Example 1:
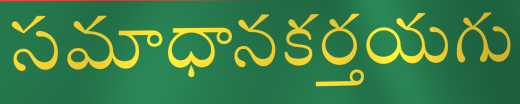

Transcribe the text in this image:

సమాధానకర్తయగు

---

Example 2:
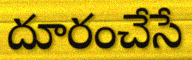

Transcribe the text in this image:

దూరంచేసే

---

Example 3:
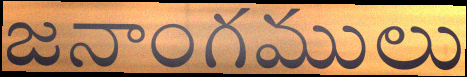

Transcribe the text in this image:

జనాంగములు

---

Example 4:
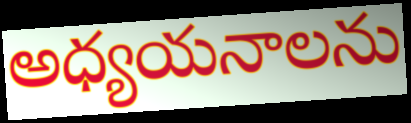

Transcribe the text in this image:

అధ్యయనాలను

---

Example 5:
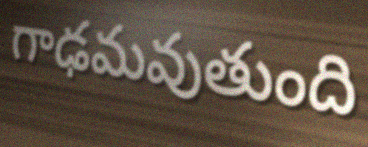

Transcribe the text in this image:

గాఢమవుతుంది